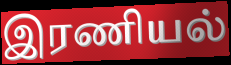
இரணியல்